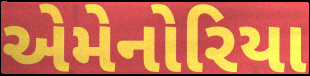
એમેનોરિયા